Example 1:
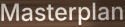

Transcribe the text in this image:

Masterplan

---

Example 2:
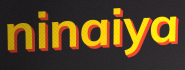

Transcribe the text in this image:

ninaiya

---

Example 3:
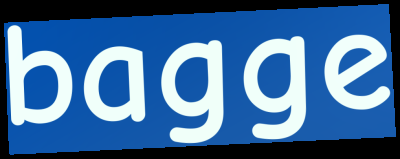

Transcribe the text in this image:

bagge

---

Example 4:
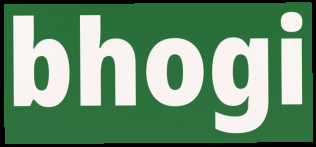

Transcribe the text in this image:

bhogi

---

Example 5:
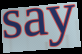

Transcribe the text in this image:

say